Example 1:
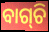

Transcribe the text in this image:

ବାଗ୍‌ଚି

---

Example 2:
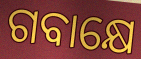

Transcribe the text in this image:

ଗବାକ୍ଷେ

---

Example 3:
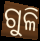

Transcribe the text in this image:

ଗୁଳି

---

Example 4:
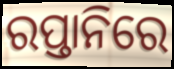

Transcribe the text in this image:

ରପ୍ତାନିରେ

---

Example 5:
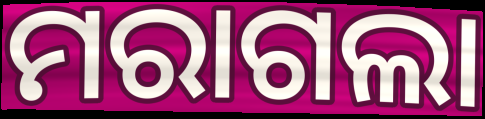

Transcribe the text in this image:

ମରାଗଲା